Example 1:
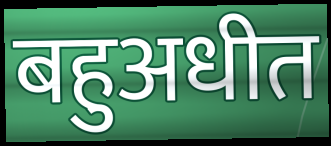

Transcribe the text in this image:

बहुअधीत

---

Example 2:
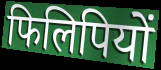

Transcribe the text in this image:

फिलिपियों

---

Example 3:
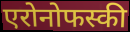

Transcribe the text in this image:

एरोनोफस्की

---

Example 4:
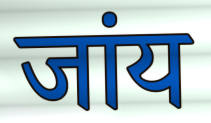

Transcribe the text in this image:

जांय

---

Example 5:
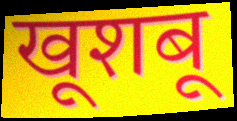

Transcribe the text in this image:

खूशबू